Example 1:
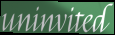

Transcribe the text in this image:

uninvited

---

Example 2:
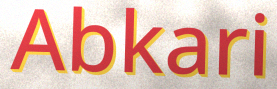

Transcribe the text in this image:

Abkari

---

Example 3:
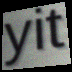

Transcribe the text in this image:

yit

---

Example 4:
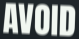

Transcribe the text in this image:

AVOID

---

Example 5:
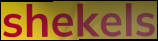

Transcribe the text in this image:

shekels